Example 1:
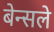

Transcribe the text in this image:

बेन्सले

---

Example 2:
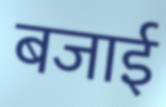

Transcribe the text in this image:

बजाई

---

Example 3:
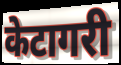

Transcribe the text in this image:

केटागरी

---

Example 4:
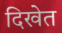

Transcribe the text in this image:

दिखेत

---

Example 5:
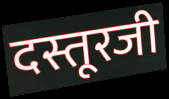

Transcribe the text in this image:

दस्तूरजी